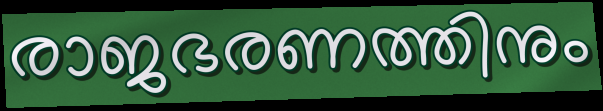
രാജഭരണത്തിനും